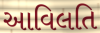
આવિલતિ